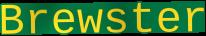
Brewster